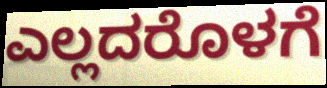
ಎಲ್ಲದರೊಳಗೆ